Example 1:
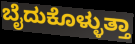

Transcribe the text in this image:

ಬೈದುಕೊಳ್ಳುತ್ತಾ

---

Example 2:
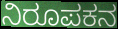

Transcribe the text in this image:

ನಿರೂಪಕನ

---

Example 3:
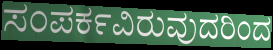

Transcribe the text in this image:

ಸಂಪರ್ಕವಿರುವುದರಿಂದ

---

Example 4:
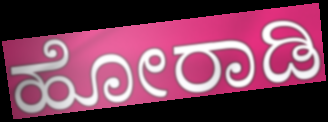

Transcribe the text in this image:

ಹೋರಾಡಿ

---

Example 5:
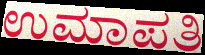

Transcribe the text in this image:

ಉಮಾಪತಿ